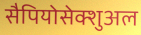
सैपियोसेक्शुअल